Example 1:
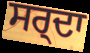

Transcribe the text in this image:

ਸਰ੍ਦਾ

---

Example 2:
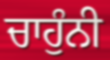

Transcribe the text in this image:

ਚਾਹੁੰਨੀ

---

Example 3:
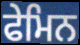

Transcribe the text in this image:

ਫੇਮਿਨ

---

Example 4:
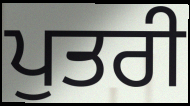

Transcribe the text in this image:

ਪੁਤਰੀ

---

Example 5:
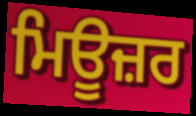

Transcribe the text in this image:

ਮਿਊਜ਼ਰ